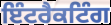
ਇੰਟਰੈਕਟਿੰਗ